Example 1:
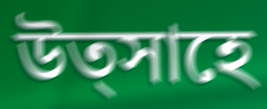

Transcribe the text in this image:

উত্সাহে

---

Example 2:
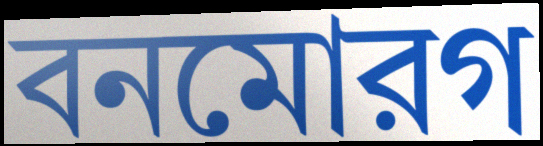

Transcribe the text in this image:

বনমোরগ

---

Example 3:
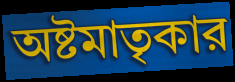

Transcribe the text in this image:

অষ্টমাতৃকার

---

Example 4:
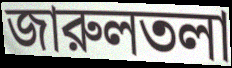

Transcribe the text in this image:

জারুলতলা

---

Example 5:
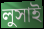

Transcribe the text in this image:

লুসাই